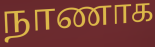
நாணாக